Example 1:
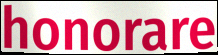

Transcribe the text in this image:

honorare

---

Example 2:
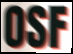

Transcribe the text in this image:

OSF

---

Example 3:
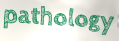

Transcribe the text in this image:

pathology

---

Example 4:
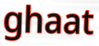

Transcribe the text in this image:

ghaat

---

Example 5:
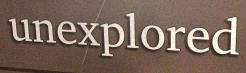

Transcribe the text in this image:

unexplored